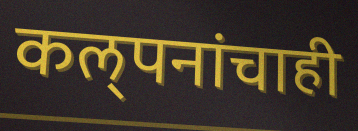
कल्पनांचाही